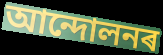
আন্দোলনৰ